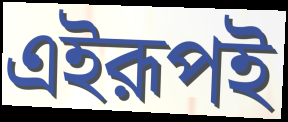
এইরূপই